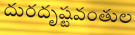
దురదృష్టవంతుల